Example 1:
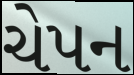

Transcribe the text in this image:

ચેપન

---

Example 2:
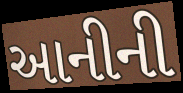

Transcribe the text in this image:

આનીની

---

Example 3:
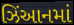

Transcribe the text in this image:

ઝિંઆનમાં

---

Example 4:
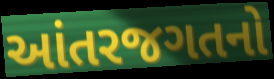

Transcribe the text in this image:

આંતરજગતનો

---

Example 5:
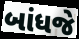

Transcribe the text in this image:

બાંધજે